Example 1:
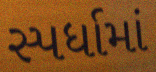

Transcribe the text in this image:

સ્પર્ધામાં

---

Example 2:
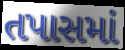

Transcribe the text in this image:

તપાસમાં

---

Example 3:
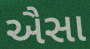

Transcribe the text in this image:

ઐસા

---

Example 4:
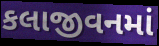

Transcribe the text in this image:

કલાજીવનમાં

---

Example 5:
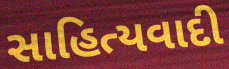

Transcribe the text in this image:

સાહિત્યવાદી